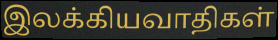
இலக்கியவாதிகள்